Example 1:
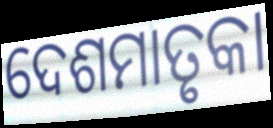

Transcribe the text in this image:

ଦେଶମାତୃକା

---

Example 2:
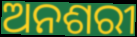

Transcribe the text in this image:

ଅନଶରୀ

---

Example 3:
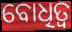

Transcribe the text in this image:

ବୋଧିତ୍ୱ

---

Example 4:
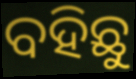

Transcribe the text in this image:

ବହିଛୁ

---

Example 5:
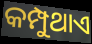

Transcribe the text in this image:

କମ୍ପୁଥାଏ